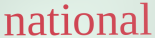
national